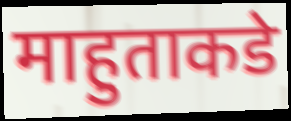
माहुताकडे